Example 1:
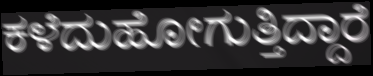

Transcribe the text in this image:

ಕಳೆದುಹೋಗುತ್ತಿದ್ದಾರೆ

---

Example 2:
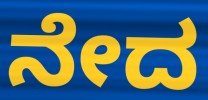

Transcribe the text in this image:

ನೇದ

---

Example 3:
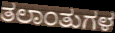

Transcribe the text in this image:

ತಲಾಂತುಗಳ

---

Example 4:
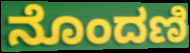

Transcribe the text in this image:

ನೊಂದಣಿ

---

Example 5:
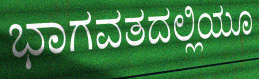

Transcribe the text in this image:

ಭಾಗವತದಲ್ಲಿಯೂ